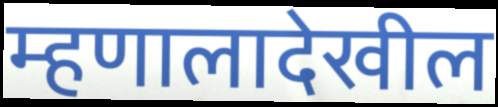
म्हणालादेखील